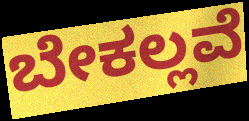
ಬೇಕಲ್ಲವೆ